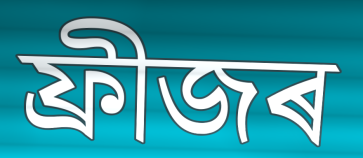
ফ্ৰীজৰ